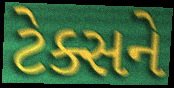
ટેક્સને